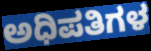
ಅಧಿಪತಿಗಳ